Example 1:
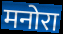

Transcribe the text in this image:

मनोरा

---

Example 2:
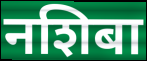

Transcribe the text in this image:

नशिबा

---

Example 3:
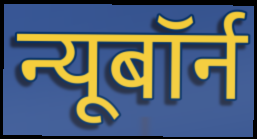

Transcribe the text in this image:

न्यूबॉर्न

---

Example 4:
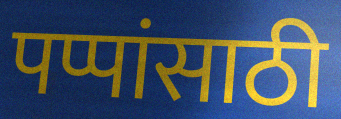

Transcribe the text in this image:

पप्पांसाठी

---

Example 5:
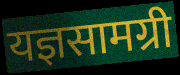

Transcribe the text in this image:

यज्ञसामग्री